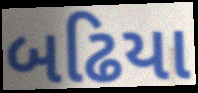
બઢિયા